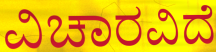
ವಿಚಾರವಿದೆ